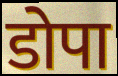
डोपा